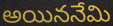
అయిననేమి